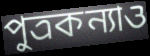
পুত্রকন্যাও